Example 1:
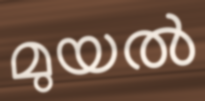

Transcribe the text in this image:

മുയൽ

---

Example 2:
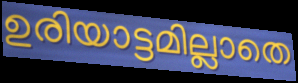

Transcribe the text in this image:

ഉരിയാട്ടമില്ലാതെ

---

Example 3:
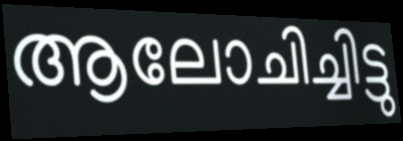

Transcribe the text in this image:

ആലോചിച്ചിട്ടു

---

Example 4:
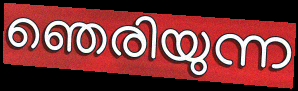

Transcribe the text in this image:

ഞെരിയുന്ന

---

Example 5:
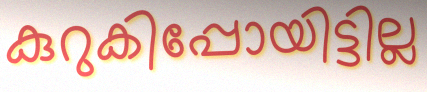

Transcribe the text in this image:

കുറുകിപ്പോയിട്ടില്ല